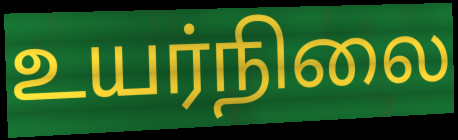
உயர்நிலை